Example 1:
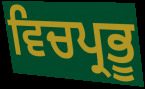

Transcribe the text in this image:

ਵਿਚਪ੍ਰਭੂ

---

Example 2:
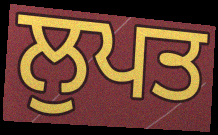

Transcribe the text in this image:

ਲੁਪਤ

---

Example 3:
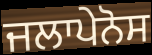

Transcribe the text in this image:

ਜਲਾਪੇਨੋਸ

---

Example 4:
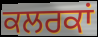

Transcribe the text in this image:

ਕਲਰਕਾਂ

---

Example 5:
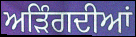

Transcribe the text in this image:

ਅੜਿੰਗਦੀਆਂ